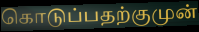
கொடுப்பதற்குமுன்